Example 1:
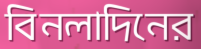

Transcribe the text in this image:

বিনলাদিনের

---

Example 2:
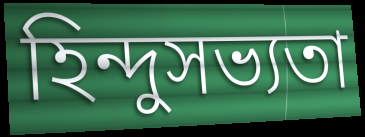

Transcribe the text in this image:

হিন্দুসভ্যতা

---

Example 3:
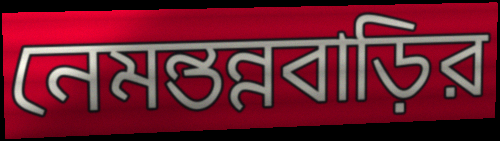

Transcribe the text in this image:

নেমন্তন্নবাড়ির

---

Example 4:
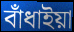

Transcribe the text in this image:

বাঁধাইয়া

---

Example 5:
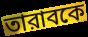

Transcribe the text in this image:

তারাবকে